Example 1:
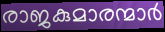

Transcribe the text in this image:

രാജകുമാരന്മാർ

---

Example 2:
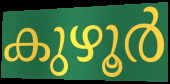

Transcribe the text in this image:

കുഴൂർ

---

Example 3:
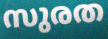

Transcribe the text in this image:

സുരത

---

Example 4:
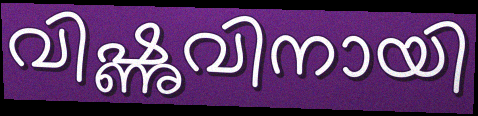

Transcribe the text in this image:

വിഷ്ണുവിനായി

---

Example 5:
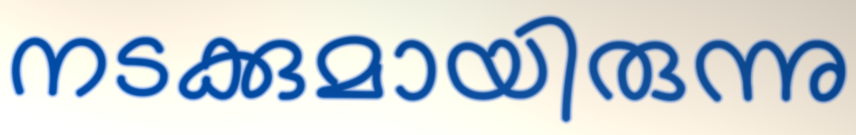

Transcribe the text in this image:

നടക്കുമായിരുന്നു